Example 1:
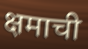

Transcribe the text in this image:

क्षमाची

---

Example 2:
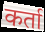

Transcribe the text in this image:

कर्ता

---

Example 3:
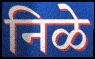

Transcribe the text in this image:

निळे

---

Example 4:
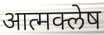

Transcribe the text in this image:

आत्मक्लेष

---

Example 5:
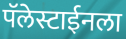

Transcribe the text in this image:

पॅलेस्टाईनला